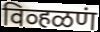
विव्हळणं